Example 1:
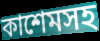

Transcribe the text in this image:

কাশেমসহ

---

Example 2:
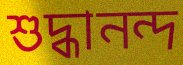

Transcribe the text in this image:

শুদ্ধানন্দ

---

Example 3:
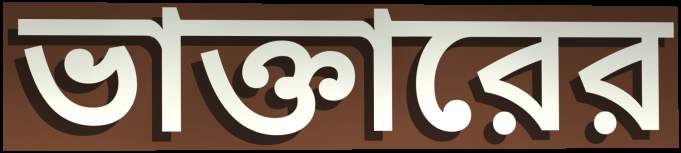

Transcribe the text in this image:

ভাক্তারের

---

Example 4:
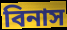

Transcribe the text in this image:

বিনাস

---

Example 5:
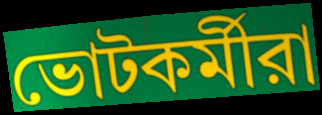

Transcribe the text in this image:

ভোটকর্মীরা